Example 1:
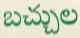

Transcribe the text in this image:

బచ్చుల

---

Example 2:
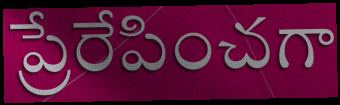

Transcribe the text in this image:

ప్రేరేపించగా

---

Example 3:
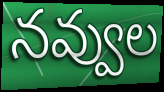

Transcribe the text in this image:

నవ్వుల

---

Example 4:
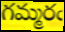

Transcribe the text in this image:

గమ్మరఁ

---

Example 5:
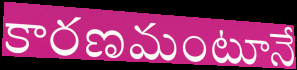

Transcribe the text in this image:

కారణమంటూనే